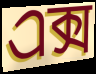
এক্স